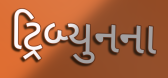
ટ્રિબ્યુનના